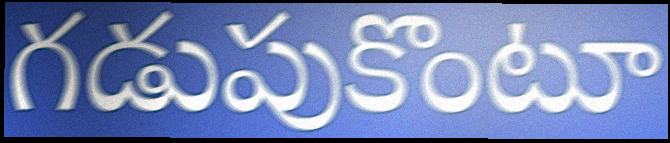
గడుపుకొంటూ